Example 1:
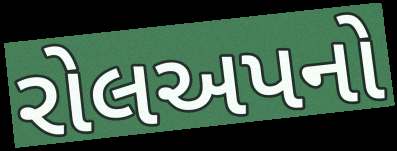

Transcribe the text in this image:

રોલઅપનો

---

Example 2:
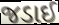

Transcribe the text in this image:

જડાઈ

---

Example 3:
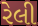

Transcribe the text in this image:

રેલી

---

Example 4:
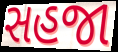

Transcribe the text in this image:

સહજા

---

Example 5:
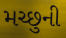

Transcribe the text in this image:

મચ્છુની